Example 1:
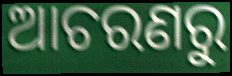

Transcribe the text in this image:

ଆଚରଣରୁ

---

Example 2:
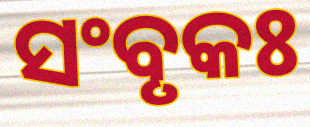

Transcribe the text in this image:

ସଂବୃକଃ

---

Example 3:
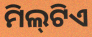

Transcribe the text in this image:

ମିଲ୍‌ଟିଏ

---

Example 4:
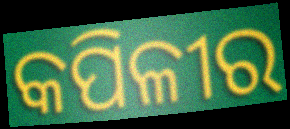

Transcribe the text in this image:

କପିଳୀର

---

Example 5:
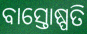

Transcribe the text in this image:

ବାସ୍ତୋଷ୍ପତି